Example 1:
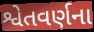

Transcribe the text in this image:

શ્વેતવર્ણના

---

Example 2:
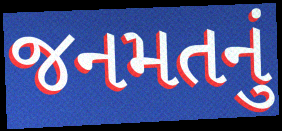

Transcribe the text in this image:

જનમતનું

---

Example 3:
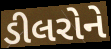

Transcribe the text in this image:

ડીલરોને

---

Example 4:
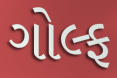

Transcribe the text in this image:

ગોલ્ફ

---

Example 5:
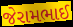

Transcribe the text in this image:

જેરામભાઈ